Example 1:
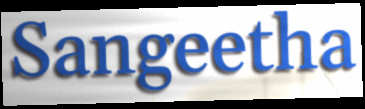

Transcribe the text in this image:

Sangeetha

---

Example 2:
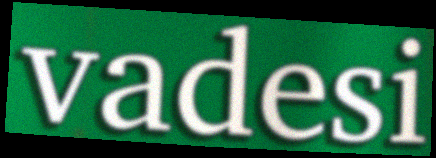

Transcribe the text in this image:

vadesi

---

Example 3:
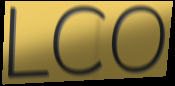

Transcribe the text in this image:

LCO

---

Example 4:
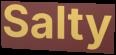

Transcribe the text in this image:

Salty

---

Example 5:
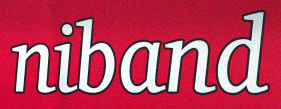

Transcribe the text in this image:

niband